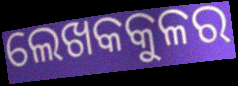
ଲେଖକକୁଳର